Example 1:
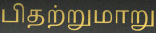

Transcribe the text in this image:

பிதற்றுமாறு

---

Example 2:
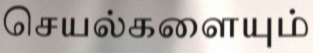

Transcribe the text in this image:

செயல்களையும்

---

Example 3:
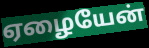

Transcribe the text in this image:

ஏழையேன்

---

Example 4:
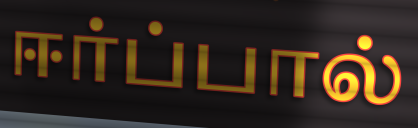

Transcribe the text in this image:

ஈர்ப்பால்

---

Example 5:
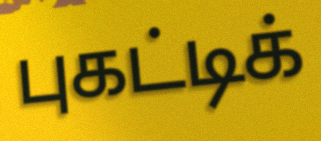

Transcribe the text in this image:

புகட்டிக்